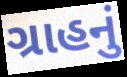
ગ્રાહનું